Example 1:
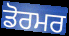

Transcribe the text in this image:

ਡੋਰਮਰ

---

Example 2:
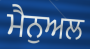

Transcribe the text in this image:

ਮੈਨੁਅਲ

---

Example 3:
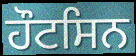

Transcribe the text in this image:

ਹੌਟਸਿਨ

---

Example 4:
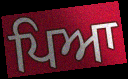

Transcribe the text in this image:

ਪਿਆ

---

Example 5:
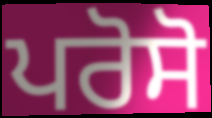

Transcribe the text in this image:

ਪਰੋਸੋ